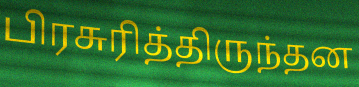
பிரசுரித்திருந்தன